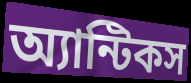
অ্যান্টিকস